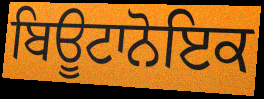
ਬਿਊਟਾਨੋਇਕ